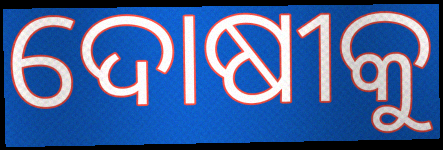
ଦୋଷୀକୁ